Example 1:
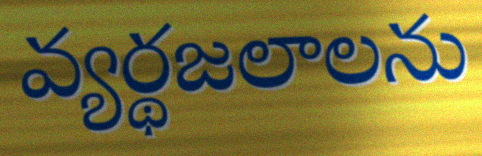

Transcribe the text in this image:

వ్యర్థజలాలను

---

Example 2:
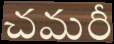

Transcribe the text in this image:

చమరీ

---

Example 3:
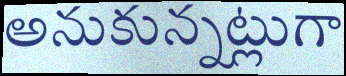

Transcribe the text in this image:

అనుకున్నట్లుగా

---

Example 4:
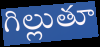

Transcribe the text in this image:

గిల్లుతూ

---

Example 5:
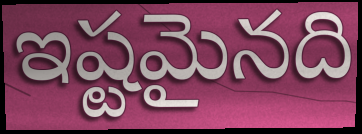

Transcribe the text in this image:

ఇష్టమైనది